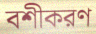
বশীকরণ